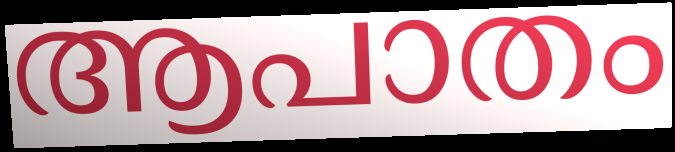
ആപാതം